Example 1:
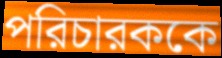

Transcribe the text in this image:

পরিচারককে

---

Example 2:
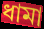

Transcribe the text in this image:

ধামা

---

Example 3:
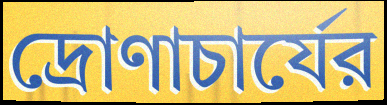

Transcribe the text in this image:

দ্রোণাচার্যের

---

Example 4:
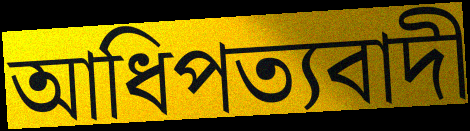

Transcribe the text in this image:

আধিপত্যবাদী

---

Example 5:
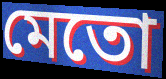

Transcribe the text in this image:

মেতো